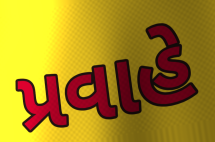
પ્રવાહે